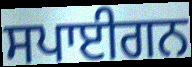
ਸਪਾਈਗਨ